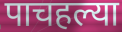
पाचहल्या